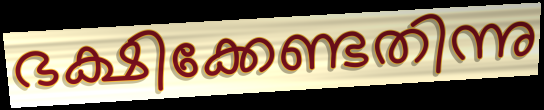
ഭക്ഷിക്കേണ്ടതിന്നു